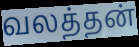
வலத்தன்